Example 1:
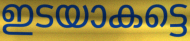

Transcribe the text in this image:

ഇടയാകട്ടെ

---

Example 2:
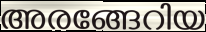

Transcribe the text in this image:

അരങ്ങേറിയ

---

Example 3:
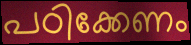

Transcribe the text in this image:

പഠിക്കേണം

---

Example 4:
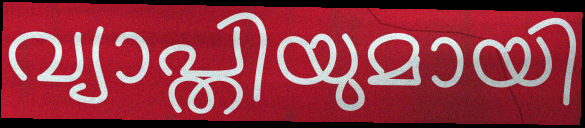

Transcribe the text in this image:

വ്യാപ്തിയുമായി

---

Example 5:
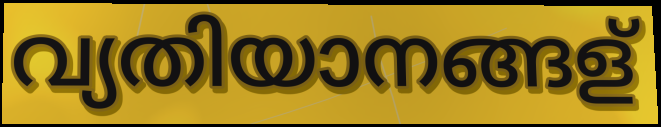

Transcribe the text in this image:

വ്യതിയാനങ്ങള്